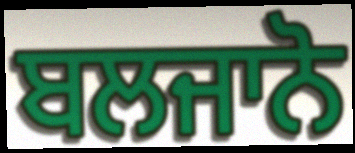
ਬਲਜਾਨੋ